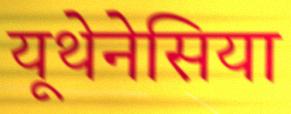
यूथेनेसिया